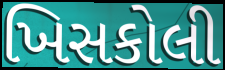
ખિસકોલી